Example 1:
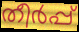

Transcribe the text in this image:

തീർപ്പ്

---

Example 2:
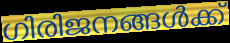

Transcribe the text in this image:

ഗിരിജനങ്ങൾക്ക്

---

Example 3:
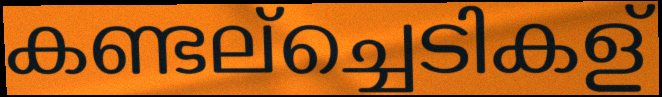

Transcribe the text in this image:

കണ്ടല്ച്ചെടികള്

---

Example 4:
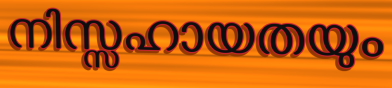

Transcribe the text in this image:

നിസ്സഹായതയും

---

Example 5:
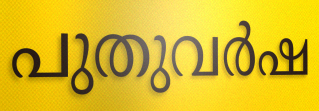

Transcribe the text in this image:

പുതുവർഷ